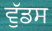
ਵੁੱਡਸ